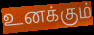
உனக்கும்